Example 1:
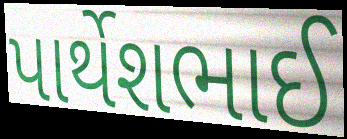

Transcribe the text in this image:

પાર્થેશભાઈ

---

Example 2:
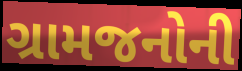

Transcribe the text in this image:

ગ્રામજનોની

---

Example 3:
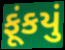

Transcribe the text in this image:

ફૂંકયું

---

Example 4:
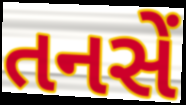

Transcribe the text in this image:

તનસેં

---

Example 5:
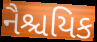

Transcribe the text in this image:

નૈશ્ચયિક